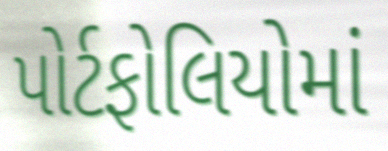
પોર્ટફોલિયોમાં